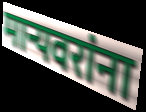
मान्यवरांना